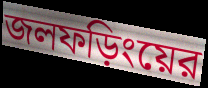
জলফড়িংয়ের